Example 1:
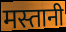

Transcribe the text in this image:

मस्‍तानी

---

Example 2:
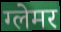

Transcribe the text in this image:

ग्लेमर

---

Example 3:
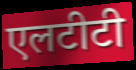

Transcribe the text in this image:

एलटीटी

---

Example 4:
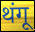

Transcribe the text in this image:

थंगू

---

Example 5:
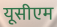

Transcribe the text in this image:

यूसीएम